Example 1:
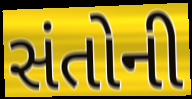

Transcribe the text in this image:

સંતોની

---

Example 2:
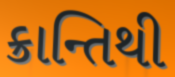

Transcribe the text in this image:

ક્રાન્તિથી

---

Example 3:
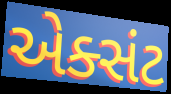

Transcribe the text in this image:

એક્સંટ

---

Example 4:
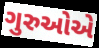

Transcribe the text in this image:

ગુરુઓએ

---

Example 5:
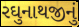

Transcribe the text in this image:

રઘુનાથજીનું